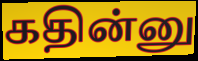
கதின்னு